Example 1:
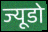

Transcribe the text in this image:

ज्यूडो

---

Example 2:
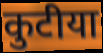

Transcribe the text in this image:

कुटीया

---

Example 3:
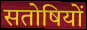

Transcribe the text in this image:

सतोषियों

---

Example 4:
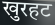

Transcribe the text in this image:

खुरहट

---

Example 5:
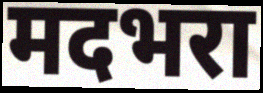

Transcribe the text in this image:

मदभरा